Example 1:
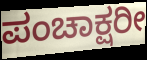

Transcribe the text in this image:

ಪಂಚಾಕ್ಷರೀ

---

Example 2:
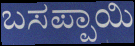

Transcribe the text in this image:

ಬಸಪ್ಪಾಯಿ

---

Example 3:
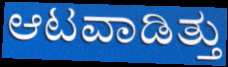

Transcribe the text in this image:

ಆಟವಾಡಿತ್ತು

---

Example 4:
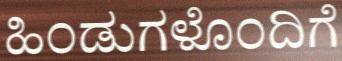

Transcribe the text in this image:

ಹಿಂಡುಗಳೊಂದಿಗೆ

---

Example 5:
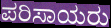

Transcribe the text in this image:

ಪರಿಸಾಯರು